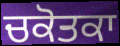
ਚਕੋਤਕਾ